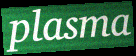
plasma